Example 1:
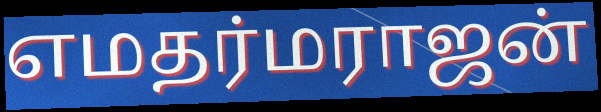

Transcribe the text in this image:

எமதர்மராஜன்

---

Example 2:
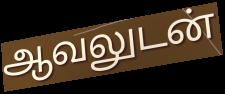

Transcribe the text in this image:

ஆவலுடன்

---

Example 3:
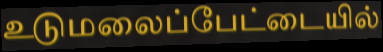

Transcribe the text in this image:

உடுமலைப்பேட்டையில்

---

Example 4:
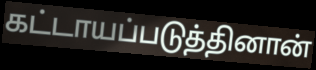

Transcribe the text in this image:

கட்டாயப்படுத்தினான்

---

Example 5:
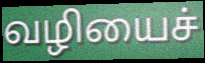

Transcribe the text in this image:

வழியைச்